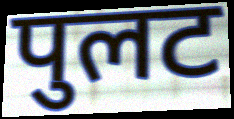
पुलट